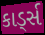
કાર્ડ્સ